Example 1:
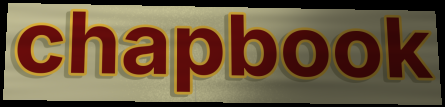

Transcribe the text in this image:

chapbook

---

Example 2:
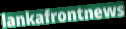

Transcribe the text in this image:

lankafrontnews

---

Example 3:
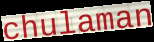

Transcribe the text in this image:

chulaman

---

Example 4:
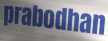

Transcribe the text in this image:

prabodhan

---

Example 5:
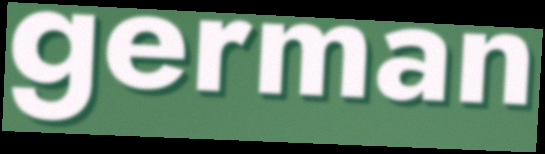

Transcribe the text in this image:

german